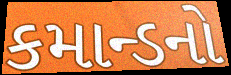
કમાન્ડનો